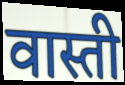
वास्ती